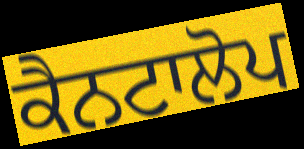
ਕੈਨਟਾਲੋਪ